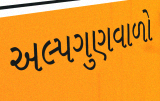
અલ્પગુણવાળો